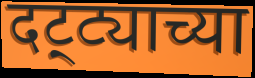
दट्ट्याच्या